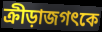
ক্রীড়াজগৎকে